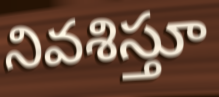
నివశిస్తూ